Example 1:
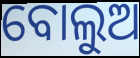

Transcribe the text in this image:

ବୋଲୁଅ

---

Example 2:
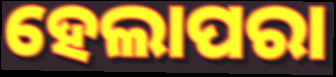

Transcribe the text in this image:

ହେଲାପରା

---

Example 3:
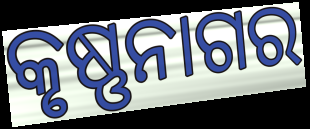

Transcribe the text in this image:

କୃଷ୍ଣନାଗର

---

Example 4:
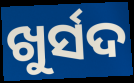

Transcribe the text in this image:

ଖୁର୍ସଦ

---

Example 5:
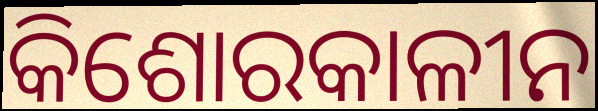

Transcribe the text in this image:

କିଶୋରକାଳୀନ